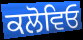
ਕਲੋਵਿਓ